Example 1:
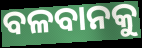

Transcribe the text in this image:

ବଳବାନକୁ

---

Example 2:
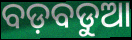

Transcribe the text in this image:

ବଡ଼ବଡୁଆ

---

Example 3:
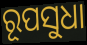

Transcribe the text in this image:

ରୂପସୁଧା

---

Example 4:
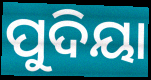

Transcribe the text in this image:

ପୁଦିୟା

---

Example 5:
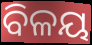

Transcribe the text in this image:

ବିଳୟ